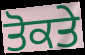
ਤੋਕਤੇ